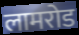
लामरोड